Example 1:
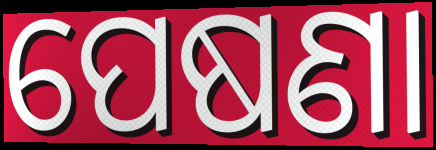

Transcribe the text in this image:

ପେଷଣା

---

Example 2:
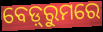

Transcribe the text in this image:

ବେଡ଼୍‌ରୁମରେ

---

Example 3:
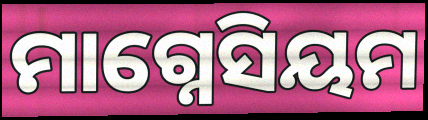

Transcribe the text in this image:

ମାଗ୍ନେସିୟମ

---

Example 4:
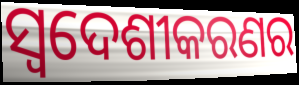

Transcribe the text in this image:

ସ୍ୱଦେଶୀକରଣର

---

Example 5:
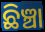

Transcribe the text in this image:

ଛିଞ୍ଚା